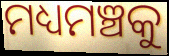
ମଧ୍ୟମଞ୍ଚକୁ